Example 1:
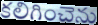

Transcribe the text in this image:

కలిగించెను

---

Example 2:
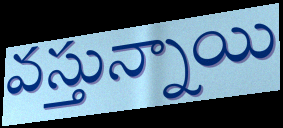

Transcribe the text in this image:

వస్తున్నాయి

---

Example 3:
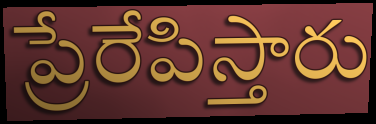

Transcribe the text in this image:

ప్రేరేపిస్తారు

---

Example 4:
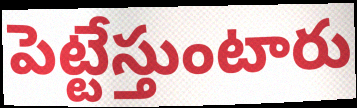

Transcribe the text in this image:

పెట్టేస్తుంటారు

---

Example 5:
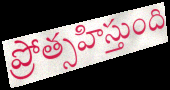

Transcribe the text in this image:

ప్రోత్సహిస్తుంది